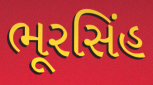
ભૂરસિંહ